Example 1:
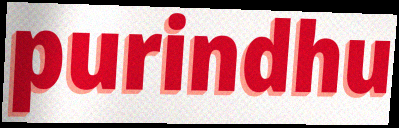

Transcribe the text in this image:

purindhu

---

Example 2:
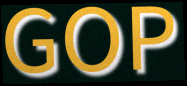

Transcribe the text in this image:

GOP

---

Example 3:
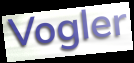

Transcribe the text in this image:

Vogler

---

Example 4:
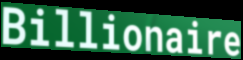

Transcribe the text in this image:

Billionaire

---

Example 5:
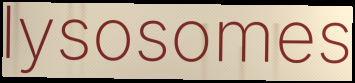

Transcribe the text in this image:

lysosomes